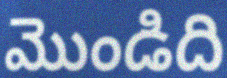
మొండిది